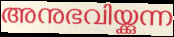
അനുഭവിയ്ക്കുന്ന